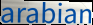
arabian